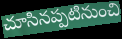
చూసినప్పటినుంచి